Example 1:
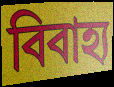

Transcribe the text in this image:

বিবাহ্য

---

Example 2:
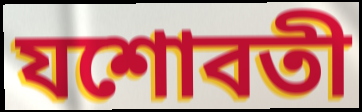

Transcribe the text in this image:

যশোবতী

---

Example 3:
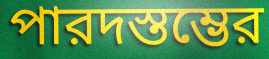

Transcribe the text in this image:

পারদস্তম্ভের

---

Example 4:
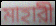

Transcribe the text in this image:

মাহারী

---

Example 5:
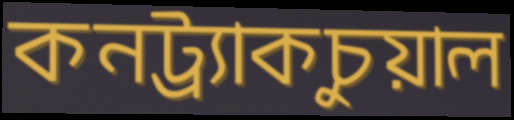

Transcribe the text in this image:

কনট্র্যাকচুয়াল